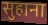
सुहाना